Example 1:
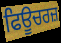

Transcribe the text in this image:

ਫਿਊਚਰਜ਼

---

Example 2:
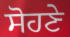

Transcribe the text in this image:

ਸੋਹਣੇ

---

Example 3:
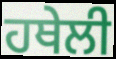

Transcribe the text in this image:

ਹਥੇਲੀ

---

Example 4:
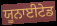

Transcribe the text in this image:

ਯੂਨਾਈਟੇਡ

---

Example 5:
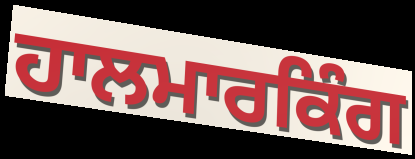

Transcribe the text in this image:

ਹਾਲਮਾਰਕਿੰਗ